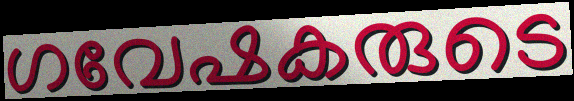
ഗവേഷകരുടെ